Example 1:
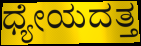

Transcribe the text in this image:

ಧ್ಯೇಯದತ್ತ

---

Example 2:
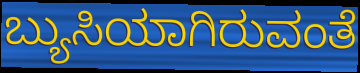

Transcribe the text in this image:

ಬ್ಯುಸಿಯಾಗಿರುವಂತೆ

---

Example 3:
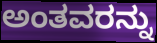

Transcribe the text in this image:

ಅಂತವರನ್ನು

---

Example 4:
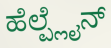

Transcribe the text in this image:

ಹೆಲ್ಪ್ಲೈನ್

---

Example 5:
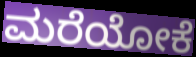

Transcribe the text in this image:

ಮರೆಯೋಕೆ